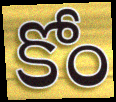
కోం